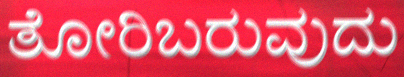
ತೋರಿಬರುವುದು